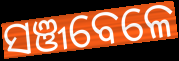
ସଞ୍ଜବେଳେ